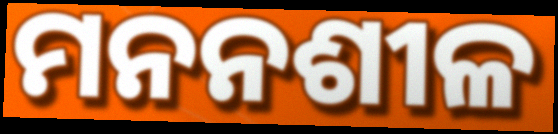
ମନନଶୀଳ